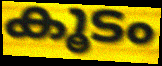
കൂടം